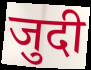
जुदी